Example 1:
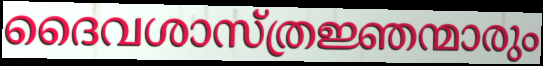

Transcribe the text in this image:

ദൈവശാസ്ത്രജ്ഞന്മാരും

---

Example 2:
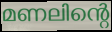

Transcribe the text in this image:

മണലിന്റെ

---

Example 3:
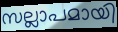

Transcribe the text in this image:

സല്ലാപമായി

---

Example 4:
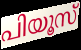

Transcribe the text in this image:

പിയൂസ്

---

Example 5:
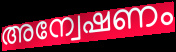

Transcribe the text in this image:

അന്വേഷണം